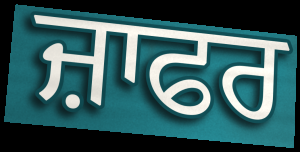
ਜ਼ਾਫਰ